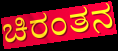
ಚಿರಂತನ